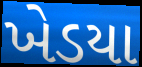
ખેડયા